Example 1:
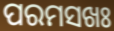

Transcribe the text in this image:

ପରମସଖଃ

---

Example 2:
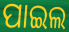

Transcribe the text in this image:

ପାଇଲ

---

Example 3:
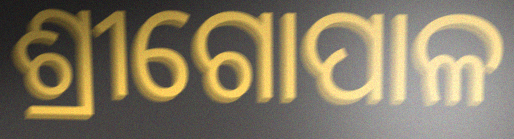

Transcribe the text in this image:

ଶ୍ରୀଗୋପାଳ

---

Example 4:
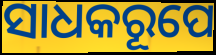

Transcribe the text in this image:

ସାଧକରୂପେ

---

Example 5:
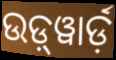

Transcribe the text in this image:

ଉଡ଼୍‍ୱାର୍ଡ଼